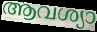
ആവശ്യാ